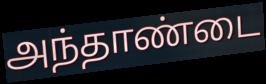
அந்தாண்டை